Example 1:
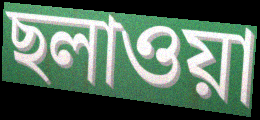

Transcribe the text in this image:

ছলাওয়া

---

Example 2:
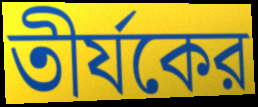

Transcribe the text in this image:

তীর্যকের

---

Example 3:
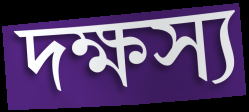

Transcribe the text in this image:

দক্ষস্য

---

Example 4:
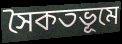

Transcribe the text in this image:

সৈকতভূমে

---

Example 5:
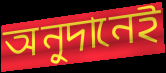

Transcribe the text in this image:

অনুদানেই